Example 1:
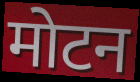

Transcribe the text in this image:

मोटन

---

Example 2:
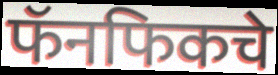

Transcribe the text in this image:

फॅनफिकचे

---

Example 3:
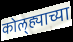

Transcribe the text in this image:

कोल्ह्याच्या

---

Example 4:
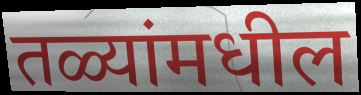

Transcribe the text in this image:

तळ्यांमधील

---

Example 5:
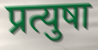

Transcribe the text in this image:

प्रत्युषा